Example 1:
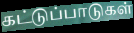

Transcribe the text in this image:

கட்டுப்பாடுகள்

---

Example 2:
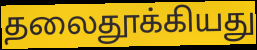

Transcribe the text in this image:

தலைதூக்கியது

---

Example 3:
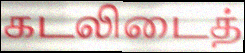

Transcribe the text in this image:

கடலிடைத்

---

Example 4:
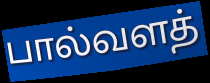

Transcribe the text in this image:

பால்வளத்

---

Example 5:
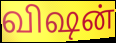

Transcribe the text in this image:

விஷன்